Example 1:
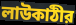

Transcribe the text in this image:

লাউকাঠীর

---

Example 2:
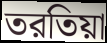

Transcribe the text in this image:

তরতিয়া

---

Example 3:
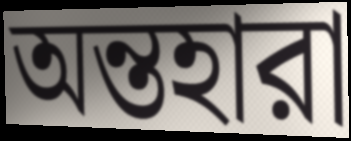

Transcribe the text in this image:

অন্তহারা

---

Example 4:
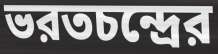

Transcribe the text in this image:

ভরতচন্দ্রের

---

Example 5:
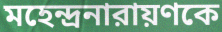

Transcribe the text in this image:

মহেন্দ্রনারায়ণকে